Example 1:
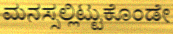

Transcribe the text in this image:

ಮನಸ್ಸಲ್ಲಿಟ್ಟುಕೊಂಡೇ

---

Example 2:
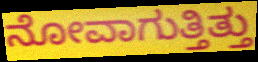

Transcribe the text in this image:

ನೋವಾಗುತ್ತಿತ್ತು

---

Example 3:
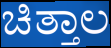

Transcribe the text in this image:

ಚಿತ್ತಾಲ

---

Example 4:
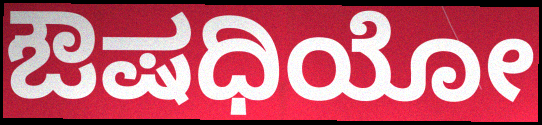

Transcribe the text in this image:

ಔಷಧಿಯೋ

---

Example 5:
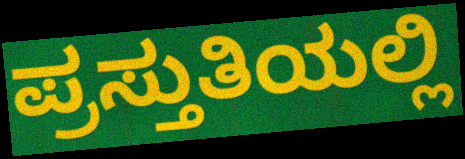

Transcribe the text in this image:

ಪ್ರಸ್ತುತಿಯಲ್ಲಿ